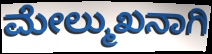
ಮೇಲ್ಮುಖನಾಗಿ